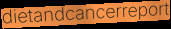
dietandcancerreport